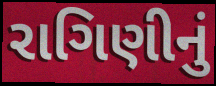
રાગિણીનું